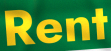
Rent